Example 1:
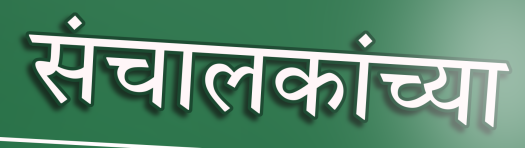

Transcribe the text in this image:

संचालकांच्या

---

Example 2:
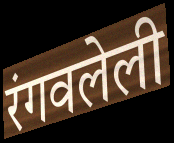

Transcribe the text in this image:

रंगवलेली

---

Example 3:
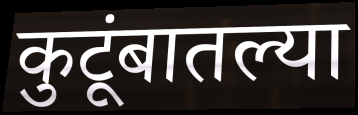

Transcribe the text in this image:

कुटूंबातल्या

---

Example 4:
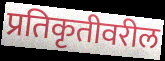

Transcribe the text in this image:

प्रतिकृतीवरील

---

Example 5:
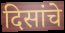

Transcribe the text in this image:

दिसांचे